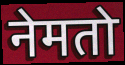
नेमतो